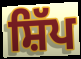
ਸ਼ਿੱਪ